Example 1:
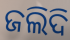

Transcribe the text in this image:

ଜଲିଦି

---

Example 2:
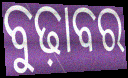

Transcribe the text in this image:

ବୁଢ଼ାବର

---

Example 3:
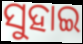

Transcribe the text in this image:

ସୁହାଇ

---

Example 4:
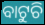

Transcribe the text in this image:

ବାଟୁଚି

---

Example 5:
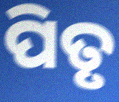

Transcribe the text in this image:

ପିତୃ